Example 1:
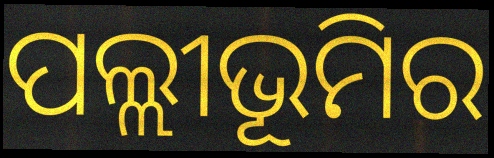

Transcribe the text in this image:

ପଲ୍ଲୀଭୂମିର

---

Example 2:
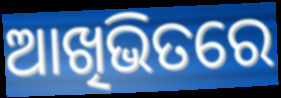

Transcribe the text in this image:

ଆଖିଭିତରେ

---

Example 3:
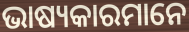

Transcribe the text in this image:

ଭାଷ୍ୟକାରମାନେ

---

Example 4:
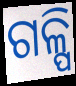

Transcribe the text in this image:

ଗଳ୍ପି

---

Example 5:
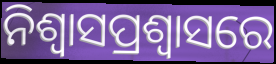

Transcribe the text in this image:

ନିଶ୍ୱାସପ୍ରଶ୍ୱାସରେ